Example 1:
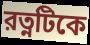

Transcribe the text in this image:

রত্নটিকে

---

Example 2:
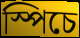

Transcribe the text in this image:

স্পিচে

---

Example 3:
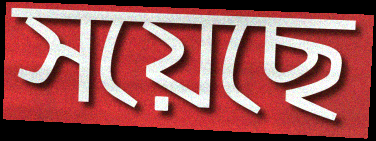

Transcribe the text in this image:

সয়েছে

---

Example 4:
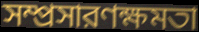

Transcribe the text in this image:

সম্প্রসারণক্ষমতা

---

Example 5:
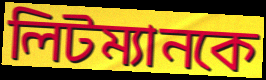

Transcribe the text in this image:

লিটম্যানকে